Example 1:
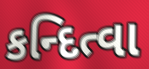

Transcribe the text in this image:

કન્દિત્વા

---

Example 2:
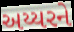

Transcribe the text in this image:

અય્યરને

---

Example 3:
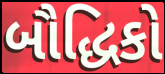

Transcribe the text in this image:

બૌદ્ધિકો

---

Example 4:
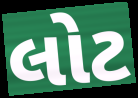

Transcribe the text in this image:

લોટ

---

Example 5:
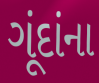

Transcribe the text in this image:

ગૂંદાંના